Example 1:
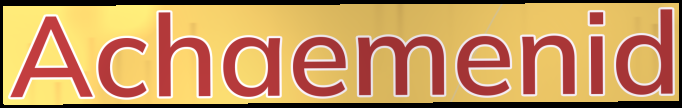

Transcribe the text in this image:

Achaemenid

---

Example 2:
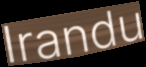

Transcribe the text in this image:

Irandu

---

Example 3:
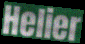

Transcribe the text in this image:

Helier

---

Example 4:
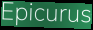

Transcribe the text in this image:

Epicurus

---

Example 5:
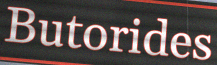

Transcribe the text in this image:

Butorides